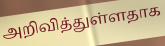
அறிவித்துள்ளதாக